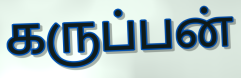
கருப்பன்